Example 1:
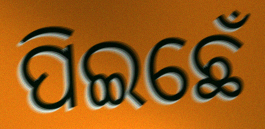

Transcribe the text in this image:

ପିଇଛେଁ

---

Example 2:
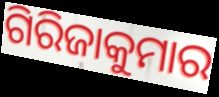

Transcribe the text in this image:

ଗିରିଜାକୁମାର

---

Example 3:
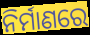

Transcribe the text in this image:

ନିର୍ମାଣରେ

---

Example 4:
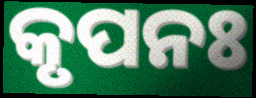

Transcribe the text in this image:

କୃପନଃ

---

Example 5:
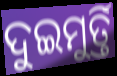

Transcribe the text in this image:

ଦୁଇମୁର୍ତ୍ତି